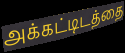
அக்கட்டிடத்தை